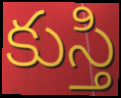
కుస్తి